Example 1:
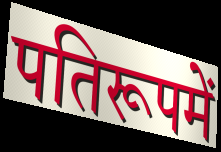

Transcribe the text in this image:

पतिरूपमें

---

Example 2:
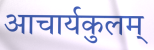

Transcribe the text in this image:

आचार्यकुलम्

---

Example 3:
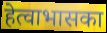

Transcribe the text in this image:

हेत्वाभासका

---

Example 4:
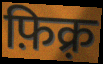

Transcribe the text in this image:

फ़िक़्र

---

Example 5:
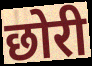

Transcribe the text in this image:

छोरी